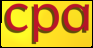
cpa